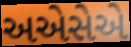
અએસેએ